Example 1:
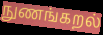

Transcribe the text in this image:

நுணங்கறல்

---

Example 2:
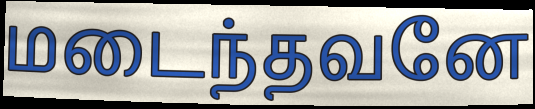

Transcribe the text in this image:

மடைந்தவனே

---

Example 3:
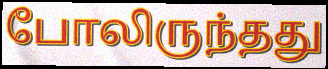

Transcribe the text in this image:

போலிருந்தது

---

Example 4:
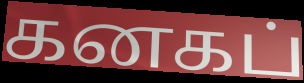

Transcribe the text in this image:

கனகப்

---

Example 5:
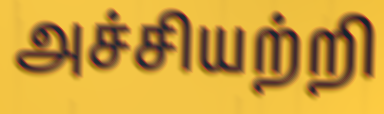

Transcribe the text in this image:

அச்சியற்றி